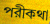
পরীকথা